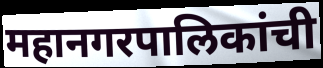
महानगरपालिकांची